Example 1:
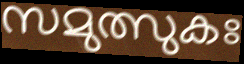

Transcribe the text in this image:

സമുത്സുകഃ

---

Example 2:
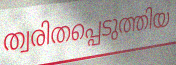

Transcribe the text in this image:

ത്വരിതപ്പെടുത്തിയ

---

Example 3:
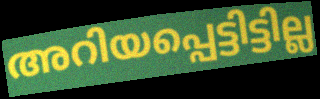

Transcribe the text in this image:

അറിയപ്പെട്ടിട്ടില്ല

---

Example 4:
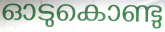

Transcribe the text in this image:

ഓടുകൊണ്ടു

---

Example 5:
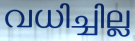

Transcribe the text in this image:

വധിച്ചില്ല